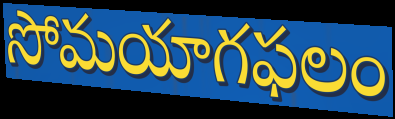
సోమయాగఫలం